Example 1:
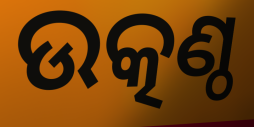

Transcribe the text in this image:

ଉତ୍କଣ୍ଠ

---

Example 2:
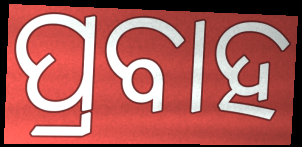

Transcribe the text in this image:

ପ୍ରବାହ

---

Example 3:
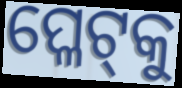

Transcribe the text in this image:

ପ୍ଳେଟ୍‌କୁ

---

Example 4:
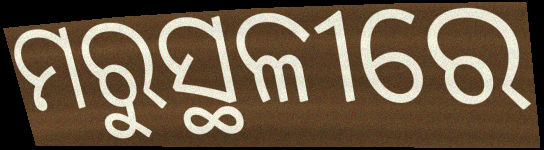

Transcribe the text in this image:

ମରୁସ୍ଥଳୀରେ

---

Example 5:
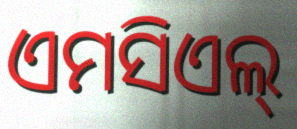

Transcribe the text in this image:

ଏମସିଏଲ୍